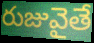
రుజువైతే